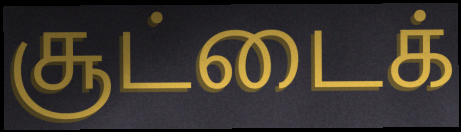
சூட்டைக்